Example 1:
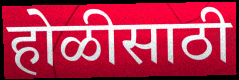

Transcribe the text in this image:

होळीसाठी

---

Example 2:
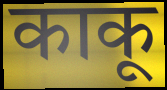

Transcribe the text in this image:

काकू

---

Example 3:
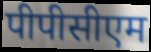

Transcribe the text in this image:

पीपीसीएम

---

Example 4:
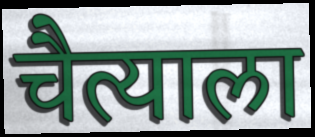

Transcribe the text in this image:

चैत्याला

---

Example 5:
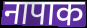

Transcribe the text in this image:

नापाक